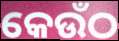
କେଉଁଠ